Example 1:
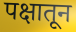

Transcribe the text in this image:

पक्षातून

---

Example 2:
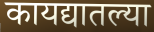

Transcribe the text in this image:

कायद्यातल्या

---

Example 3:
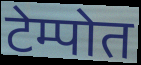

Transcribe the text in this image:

टेम्पोत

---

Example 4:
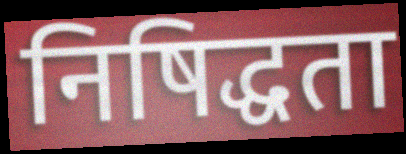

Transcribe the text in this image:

निषिद्धता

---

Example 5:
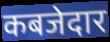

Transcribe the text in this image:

कबजेदार